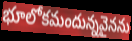
భూలోకమందున్నవైనను